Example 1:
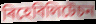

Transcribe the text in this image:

ৰিহেবিলিটেচন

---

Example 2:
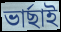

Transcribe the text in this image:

ভাৰ্ছাই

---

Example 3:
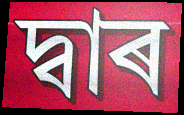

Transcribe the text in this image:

দ্বাৰ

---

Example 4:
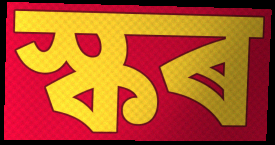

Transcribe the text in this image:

স্কৰ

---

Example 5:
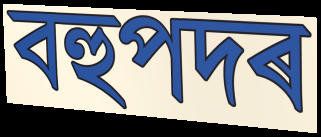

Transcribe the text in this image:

বহুপদৰ